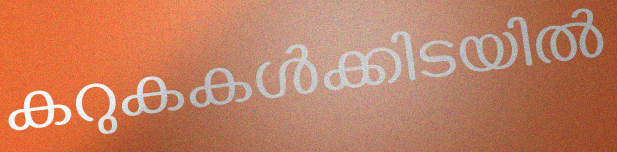
കറുകകൾക്കിടയിൽ